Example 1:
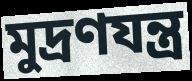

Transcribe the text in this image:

মুদ্রণযন্ত্র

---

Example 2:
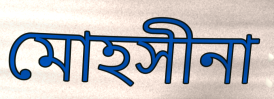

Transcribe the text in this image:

মোহসীনা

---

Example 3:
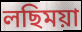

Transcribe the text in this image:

লছিময়া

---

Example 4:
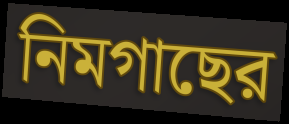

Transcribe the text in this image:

নিমগাছের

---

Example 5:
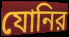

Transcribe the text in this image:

যোনির